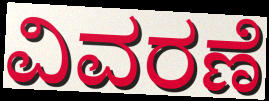
ವಿವರಣೆ